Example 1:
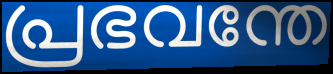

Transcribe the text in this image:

പ്രഭവന്തേ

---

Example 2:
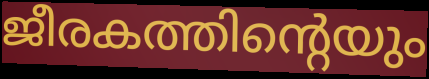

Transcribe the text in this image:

ജീരകത്തിന്റെയും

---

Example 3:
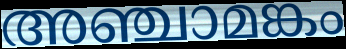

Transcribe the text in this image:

അഞ്ചാമങ്കം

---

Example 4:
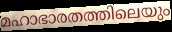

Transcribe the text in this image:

മഹാഭാരതത്തിലെയും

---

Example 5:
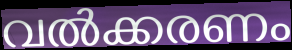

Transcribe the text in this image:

വൽക്കരണം